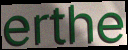
erthe